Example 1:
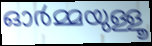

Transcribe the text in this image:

ഓർമ്മയുള്ളൂ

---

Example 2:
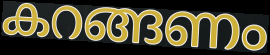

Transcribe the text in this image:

കറങ്ങണം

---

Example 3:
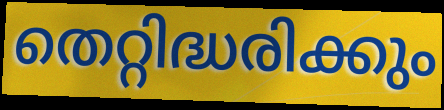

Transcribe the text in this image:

തെറ്റിദ്ധരിക്കും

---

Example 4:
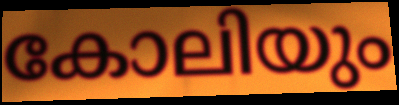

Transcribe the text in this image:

കോലിയും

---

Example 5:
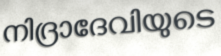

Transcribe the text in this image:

നിദ്രാദേവിയുടെ